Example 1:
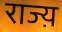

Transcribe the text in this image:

राज्य़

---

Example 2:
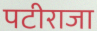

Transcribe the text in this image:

पटीराजा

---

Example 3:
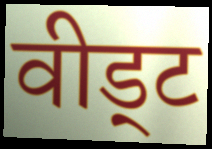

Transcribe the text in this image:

वीड्ट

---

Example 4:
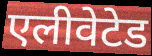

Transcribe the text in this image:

एलीवेटेड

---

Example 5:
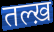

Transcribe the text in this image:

तल्ख़